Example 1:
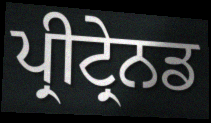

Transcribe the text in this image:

ਪ੍ਰੀਟ੍ਰੇਨਡ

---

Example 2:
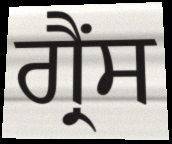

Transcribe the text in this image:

ਗ੍ਰੈਂਸ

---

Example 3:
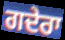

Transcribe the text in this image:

ਗਦੇਰਾ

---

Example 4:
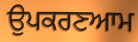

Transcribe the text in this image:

ਉਪਕਰਣਆਮ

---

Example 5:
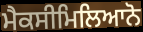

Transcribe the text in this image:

ਮੈਕਸੀਮਿਲਿਆਨੋ